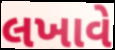
લખાવે